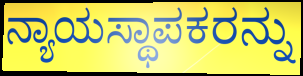
ನ್ಯಾಯಸ್ಥಾಪಕರನ್ನು